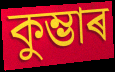
কুম্ভাৰ